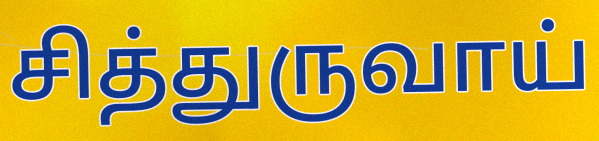
சித்துருவாய்